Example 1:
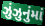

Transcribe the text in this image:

ઝુંઝુનુંમાં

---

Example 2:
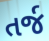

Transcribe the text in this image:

તર્જ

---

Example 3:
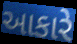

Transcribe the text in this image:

આકારે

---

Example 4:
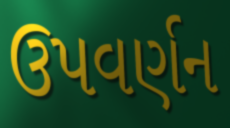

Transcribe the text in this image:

ઉપવર્ણન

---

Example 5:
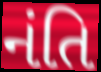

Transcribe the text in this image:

નંતિ